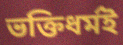
ভক্তিধৰ্মই